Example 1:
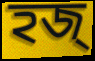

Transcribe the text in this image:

হজ্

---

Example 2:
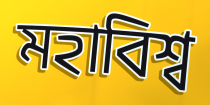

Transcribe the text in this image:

মহাবিশ্ব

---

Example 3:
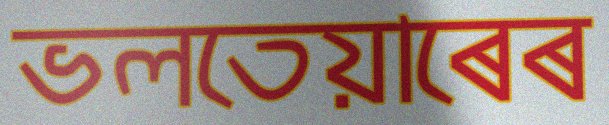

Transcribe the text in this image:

ভলতেয়াৰেৰ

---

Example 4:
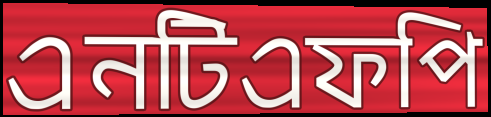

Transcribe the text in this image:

এনটিএফপি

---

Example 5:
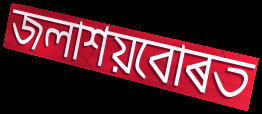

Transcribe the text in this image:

জলাশয়বোৰত